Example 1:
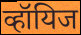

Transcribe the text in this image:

व्हॉयिज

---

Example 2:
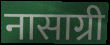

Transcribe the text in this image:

नासाग्री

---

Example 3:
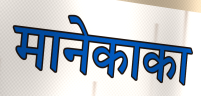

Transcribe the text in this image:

मानेकाका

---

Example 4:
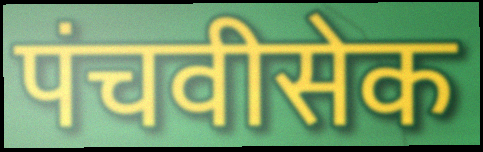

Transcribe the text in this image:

पंचवीसेक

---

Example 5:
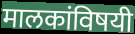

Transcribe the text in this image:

मालकांविषयी